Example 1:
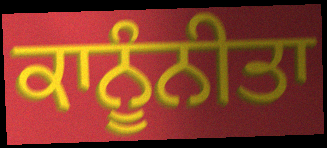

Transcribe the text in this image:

ਕਾਨੂੰਨੀਤਾ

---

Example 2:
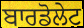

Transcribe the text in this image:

ਬਾਰਡੋਲੇਟ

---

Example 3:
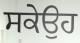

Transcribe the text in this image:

ਸਕੇਉਹ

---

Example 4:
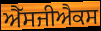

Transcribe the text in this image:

ਐੱਸਜੀਐਕਸ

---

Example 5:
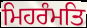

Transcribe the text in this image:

ਮਿਹਰੰਮਤਿ